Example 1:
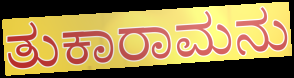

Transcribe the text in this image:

ತುಕಾರಾಮನು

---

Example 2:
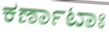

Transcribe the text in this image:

ಕರ್ಣಾಟಾಃ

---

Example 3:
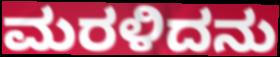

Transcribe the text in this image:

ಮರಳಿದನು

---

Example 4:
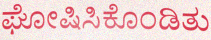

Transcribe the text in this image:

ಘೋಷಿಸಿಕೊಂಡಿತು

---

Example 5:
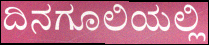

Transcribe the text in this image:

ದಿನಗೂಲಿಯಲ್ಲಿ